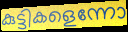
കുട്ടികളെന്നോ